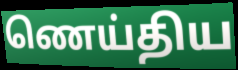
ணெய்திய